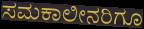
ಸಮಕಾಲೀನರಿಗೂ